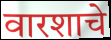
वारशाचे